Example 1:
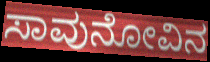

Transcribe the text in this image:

ಸಾವುನೋವಿನ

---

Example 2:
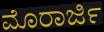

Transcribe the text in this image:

ಮೊರಾರ್ಜಿ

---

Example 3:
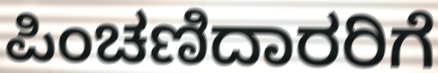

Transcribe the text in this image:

ಪಿಂಚಣಿದಾರರಿಗೆ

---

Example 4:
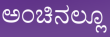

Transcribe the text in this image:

ಅಂಚಿನಲ್ಲೂ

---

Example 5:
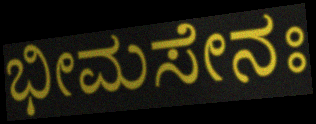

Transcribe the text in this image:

ಭೀಮಸೇನಃ